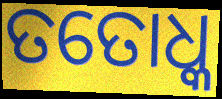
ତତୋଧ୍କ